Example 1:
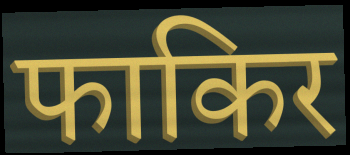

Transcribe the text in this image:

फाकिर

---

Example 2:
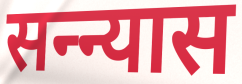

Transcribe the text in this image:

सन्न्यास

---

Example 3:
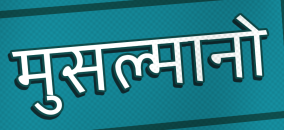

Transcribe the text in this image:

मुसल्मानो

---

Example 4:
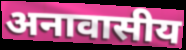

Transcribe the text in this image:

अनावासीय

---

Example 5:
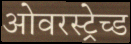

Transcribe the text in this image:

ओवरस्ट्रेच्ड